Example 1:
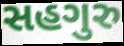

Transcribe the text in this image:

સહગુરુ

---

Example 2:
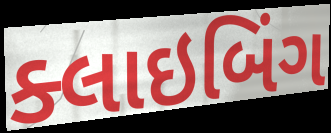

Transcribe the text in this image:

ક્લાઇબિંગ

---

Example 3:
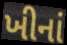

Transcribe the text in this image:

ખીનાં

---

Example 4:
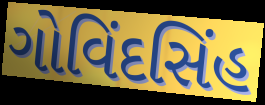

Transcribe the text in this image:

ગોવિંદસિંહ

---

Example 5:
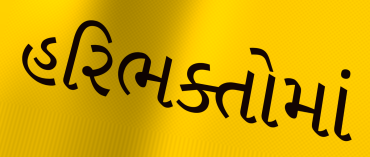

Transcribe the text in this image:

હરિભક્તોમાં